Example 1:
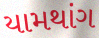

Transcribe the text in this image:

યામથાંગ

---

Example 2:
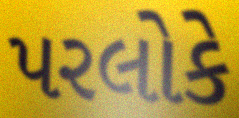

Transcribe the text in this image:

પરલોકે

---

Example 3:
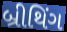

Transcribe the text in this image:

બ્રીથિંગ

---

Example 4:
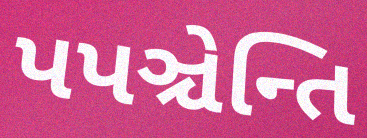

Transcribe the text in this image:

પપઞ્ચેન્તિ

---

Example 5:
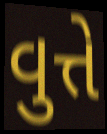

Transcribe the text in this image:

વુત્તે